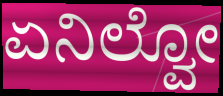
ಏನಿಲ್ವೋ